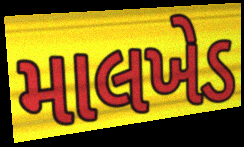
માલખેડ